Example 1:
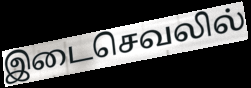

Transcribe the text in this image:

இடைசெவலில்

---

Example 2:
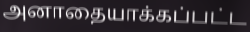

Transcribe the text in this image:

அனாதையாக்கப்பட்ட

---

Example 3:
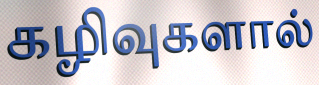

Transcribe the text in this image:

கழிவுகளால்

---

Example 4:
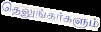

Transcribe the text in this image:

தெலுங்கர்களும்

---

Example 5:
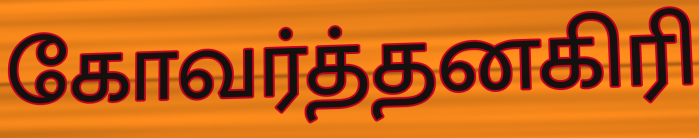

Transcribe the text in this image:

கோவர்த்தனகிரி